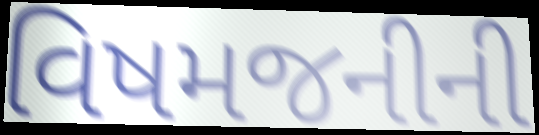
વિષમજનીની